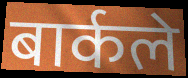
बार्कले